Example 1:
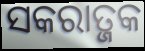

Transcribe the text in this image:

ସକରାତ୍ଜକ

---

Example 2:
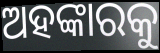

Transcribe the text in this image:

ଅହଙ୍କାରକୁ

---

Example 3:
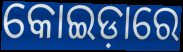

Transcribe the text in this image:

କୋଇଡ଼ାରେ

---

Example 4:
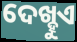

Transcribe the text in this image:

ଦେଖ୍ହୁଏ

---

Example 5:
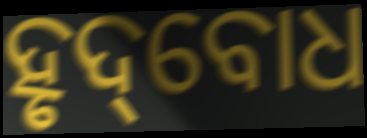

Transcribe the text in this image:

ହୃଦ୍‌ବୋଧ